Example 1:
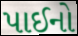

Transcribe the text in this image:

પાઈનો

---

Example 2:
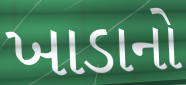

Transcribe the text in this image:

ખાડાનો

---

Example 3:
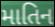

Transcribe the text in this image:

માતિન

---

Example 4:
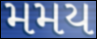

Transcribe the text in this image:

મમય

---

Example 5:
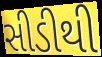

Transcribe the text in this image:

સીડીથી